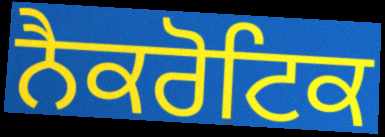
ਨੈਕਰੋਟਿਕ